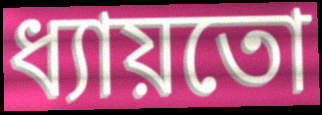
ধ্যায়তো